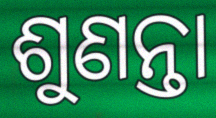
ଶୁଣନ୍ତା